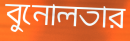
বুনোলতার